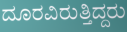
ದೂರವಿರುತ್ತಿದ್ದರು